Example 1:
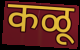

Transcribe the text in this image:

कळू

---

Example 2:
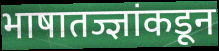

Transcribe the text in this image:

भाषातज्ज्ञांकडून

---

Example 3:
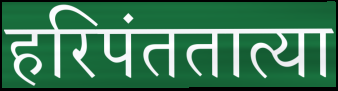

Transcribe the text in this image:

हरिपंततात्या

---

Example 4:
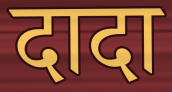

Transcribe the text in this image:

दादा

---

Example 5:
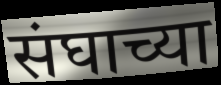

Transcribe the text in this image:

संघाच्या